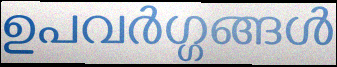
ഉപവർഗ്ഗങ്ങൾ